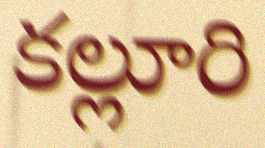
కల్లూరి